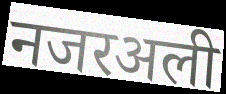
नजरअली